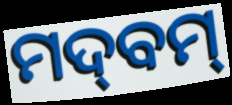
ମଦ୍‌ବମ୍